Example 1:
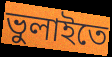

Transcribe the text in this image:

ভুলাইতে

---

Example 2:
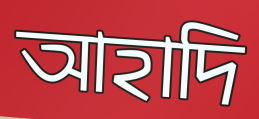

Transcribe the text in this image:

আহাদি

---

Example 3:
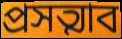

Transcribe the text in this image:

প্রসত্মাব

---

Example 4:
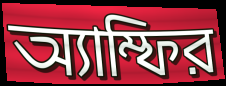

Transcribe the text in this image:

অ্যাম্ফির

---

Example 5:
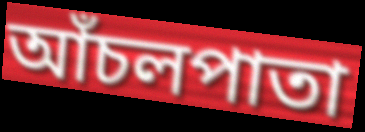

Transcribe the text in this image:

আঁচলপাতা